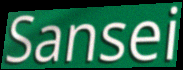
Sansei